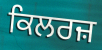
ਕਿਲਰਜ਼